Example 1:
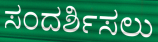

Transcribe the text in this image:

ಸಂದರ್ಶಿಸಲು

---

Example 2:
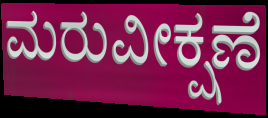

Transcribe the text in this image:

ಮರುವೀಕ್ಷಣೆ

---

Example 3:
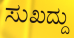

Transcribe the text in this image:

ಸುಖದ್ದು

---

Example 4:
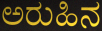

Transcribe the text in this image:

ಅರುಹಿನ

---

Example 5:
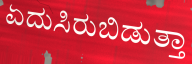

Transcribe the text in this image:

ಏದುಸಿರುಬಿಡುತ್ತಾ